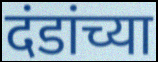
दंडांच्या